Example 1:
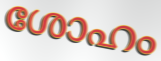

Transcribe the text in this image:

ശോഹം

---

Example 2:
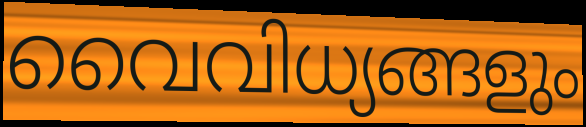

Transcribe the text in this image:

വൈവിധ്യങ്ങളും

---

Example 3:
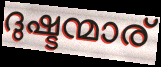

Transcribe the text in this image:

ദുഷ്ടന്മാര്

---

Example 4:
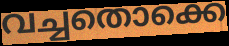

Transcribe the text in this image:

വച്ചതൊക്കെ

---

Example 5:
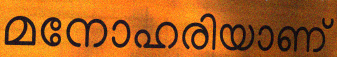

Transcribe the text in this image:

മനോഹരിയാണ്